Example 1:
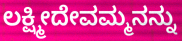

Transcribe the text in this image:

ಲಕ್ಷ್ಮೀದೇವಮ್ಮನನ್ನು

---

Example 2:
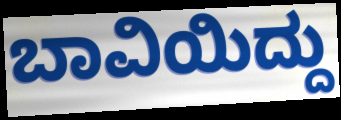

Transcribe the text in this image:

ಬಾವಿಯಿದ್ದು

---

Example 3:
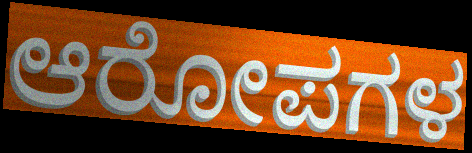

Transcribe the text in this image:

ಆರೋಪಗಳ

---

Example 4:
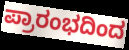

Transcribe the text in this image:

ಪ್ರಾರಂಭದಿಂದ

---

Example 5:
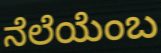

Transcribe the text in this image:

ನೆಲೆಯೆಂಬ